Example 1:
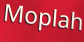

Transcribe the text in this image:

Moplah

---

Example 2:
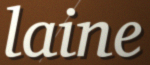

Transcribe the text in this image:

laine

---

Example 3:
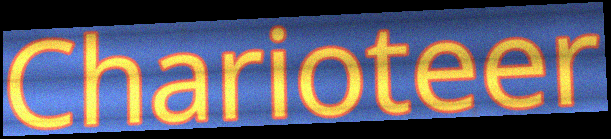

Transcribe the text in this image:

Charioteer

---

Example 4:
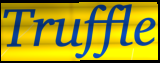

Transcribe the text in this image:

Truffle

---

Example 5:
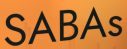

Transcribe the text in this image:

SABAs